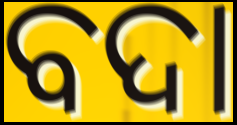
ବଦା